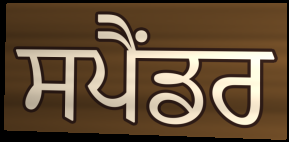
ਸਪੈਂਡਰ